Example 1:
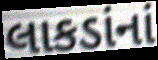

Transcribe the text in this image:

લાકડાંનાં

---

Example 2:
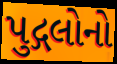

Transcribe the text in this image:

પુદ્ગલોનો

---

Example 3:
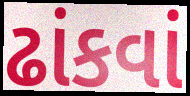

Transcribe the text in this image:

ઢાંકવાં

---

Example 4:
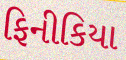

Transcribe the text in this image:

ફિનીકિયા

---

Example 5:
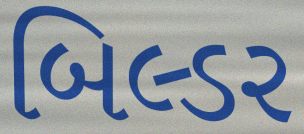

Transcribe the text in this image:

બિલ્ડર